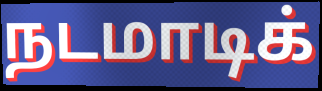
நடமாடிக்